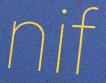
nif